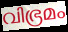
വിഭ്രമം